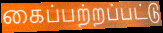
கைப்பற்றப்பட்டு